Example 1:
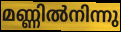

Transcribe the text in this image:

മണ്ണിൽനിന്നു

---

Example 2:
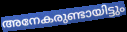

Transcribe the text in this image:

അനേകരുണ്ടായിട്ടും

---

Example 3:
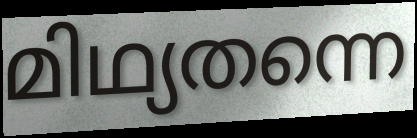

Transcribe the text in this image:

മിഥ്യതന്നെ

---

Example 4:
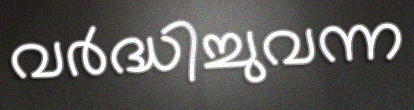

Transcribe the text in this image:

വർദ്ധിച്ചുവന്ന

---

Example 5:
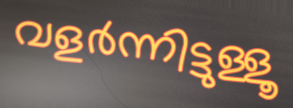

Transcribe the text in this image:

വളർന്നിട്ടുള്ളൂ